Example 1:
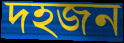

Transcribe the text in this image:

দহজন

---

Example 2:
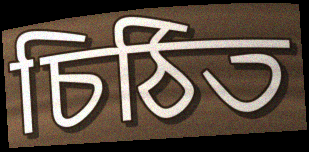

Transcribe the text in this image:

চিঠিত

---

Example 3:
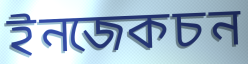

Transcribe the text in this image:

ইনজেকচন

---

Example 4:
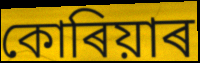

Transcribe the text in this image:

কোৰিয়াৰ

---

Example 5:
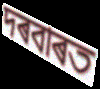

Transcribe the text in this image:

দৰবাৰত